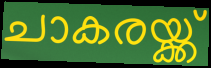
ചാകരയ്ക്ക്